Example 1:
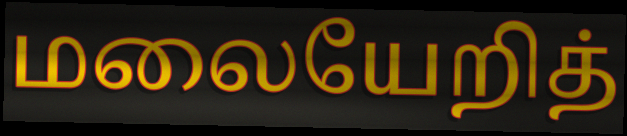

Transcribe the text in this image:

மலையேறித்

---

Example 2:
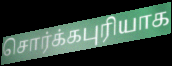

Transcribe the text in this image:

சொர்க்கபுரியாக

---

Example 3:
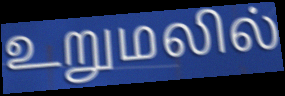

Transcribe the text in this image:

உறுமலில்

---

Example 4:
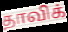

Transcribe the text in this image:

தாவிக்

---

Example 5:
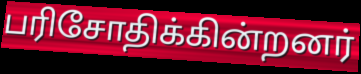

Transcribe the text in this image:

பரிசோதிக்கின்றனர்